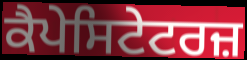
ਕੈਪੇਸਿਟੇਟਰਜ਼